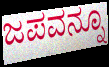
ಜಪವನ್ನೂ